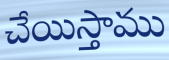
చేయిస్తాము